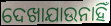
ଦେଖାଯାଉନାହିଁ